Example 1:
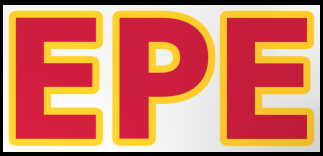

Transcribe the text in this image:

EPE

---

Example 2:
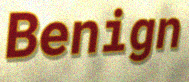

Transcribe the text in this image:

Benign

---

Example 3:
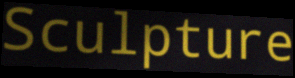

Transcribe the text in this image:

Sculpture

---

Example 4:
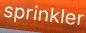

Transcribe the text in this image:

sprinkler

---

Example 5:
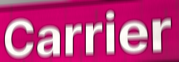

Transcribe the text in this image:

Carrier